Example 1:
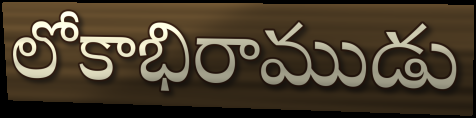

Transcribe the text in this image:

లోకాభిరాముడు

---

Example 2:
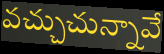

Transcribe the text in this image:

వచ్చుచున్నావే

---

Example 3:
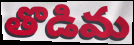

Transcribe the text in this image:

తొడిమ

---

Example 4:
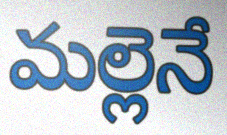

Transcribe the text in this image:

మల్లెనే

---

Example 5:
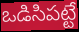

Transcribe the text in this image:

ఒడిసిపట్టే